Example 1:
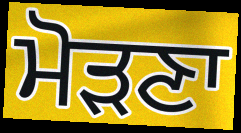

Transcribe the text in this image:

ਮੋੜਣਾ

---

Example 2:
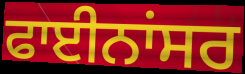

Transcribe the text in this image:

ਫਾਈਨਾਂਸਰ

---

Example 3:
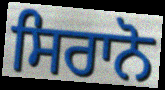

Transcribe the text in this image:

ਸਿਰਾਨੋ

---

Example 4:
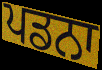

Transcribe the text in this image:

ਪਡਨਾ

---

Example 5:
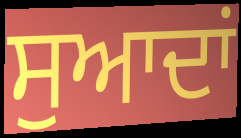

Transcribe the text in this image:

ਸੁਆਦਾਂ